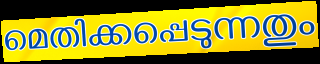
മെതിക്കപ്പെടുന്നതും